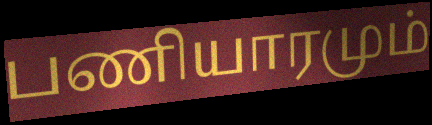
பணியாரமும்